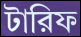
টারিফ